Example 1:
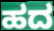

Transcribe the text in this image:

ಹದ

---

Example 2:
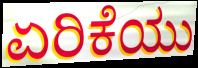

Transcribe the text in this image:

ಏರಿಕೆಯು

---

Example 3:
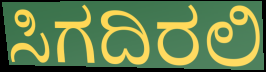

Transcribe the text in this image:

ಸಿಗದಿರಲಿ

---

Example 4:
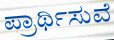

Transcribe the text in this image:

ಪ್ರಾರ್ಥಿಸುವೆ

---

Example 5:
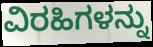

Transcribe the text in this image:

ವಿರಹಿಗಳನ್ನು